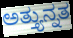
ಅತ್ತ್ಯುನ್ನತ